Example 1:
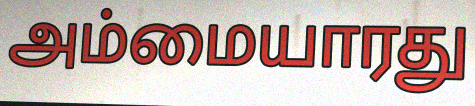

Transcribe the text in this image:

அம்மையாரது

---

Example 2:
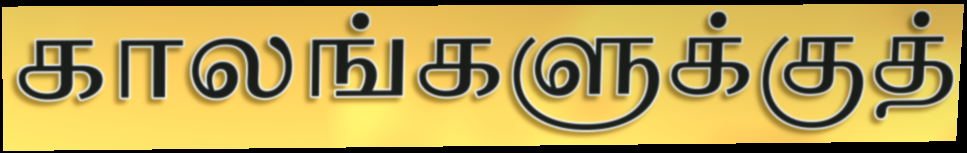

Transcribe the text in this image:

காலங்களுக்குத்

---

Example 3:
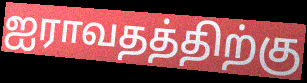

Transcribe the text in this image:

ஐராவதத்திற்கு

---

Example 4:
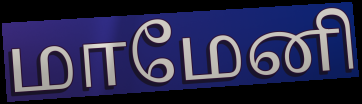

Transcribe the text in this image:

மாமேனி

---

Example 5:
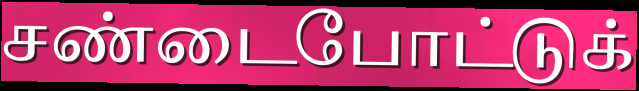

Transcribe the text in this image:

சண்டைபோட்டுக்